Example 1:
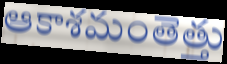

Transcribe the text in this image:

ఆకాశమంతెత్తు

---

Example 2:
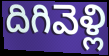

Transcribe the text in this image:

దిగివెళ్లి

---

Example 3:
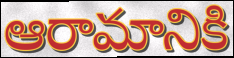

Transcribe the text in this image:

ఆరామానికి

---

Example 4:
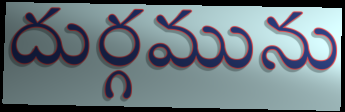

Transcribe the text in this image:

దుర్గమును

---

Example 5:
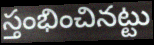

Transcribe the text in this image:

స్తంభించినట్టు